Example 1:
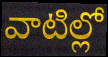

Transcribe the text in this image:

వాటిల్లో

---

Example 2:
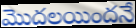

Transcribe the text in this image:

మొదలయిందనే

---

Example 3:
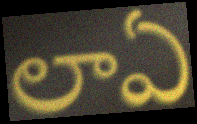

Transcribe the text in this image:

లాఏ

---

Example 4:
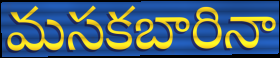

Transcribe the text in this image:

మసకబారినా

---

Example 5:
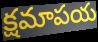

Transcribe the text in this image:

క్షమాపయ